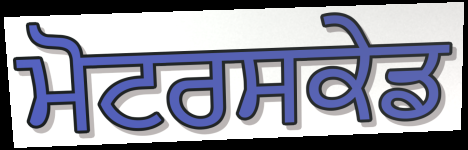
ਮੋਟਰਸਕੇਡ